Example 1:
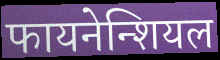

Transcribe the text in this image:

फायनेन्शियल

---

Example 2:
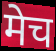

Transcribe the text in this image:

मेच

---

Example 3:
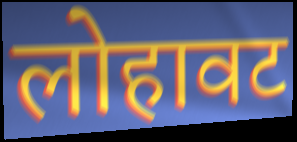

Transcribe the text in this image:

लोहावट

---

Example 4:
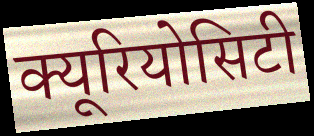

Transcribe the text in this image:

क्यूरियोसिटी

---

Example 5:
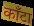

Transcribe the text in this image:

काँटा